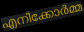
എനിക്കോർമ്മ